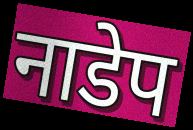
नाडेप